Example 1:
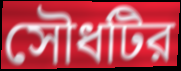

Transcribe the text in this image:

সৌধটির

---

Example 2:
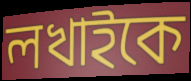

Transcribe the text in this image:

লখাইকে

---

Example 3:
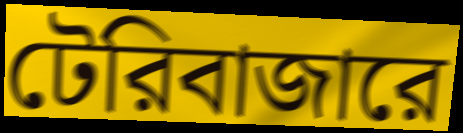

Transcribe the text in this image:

টেরিবাজারে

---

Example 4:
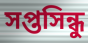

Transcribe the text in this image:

সপ্তসিন্ধু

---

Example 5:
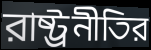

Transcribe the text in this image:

রাষ্ট্রনীতির